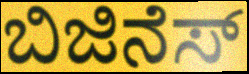
ಬಿಜಿನೆಸ್